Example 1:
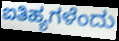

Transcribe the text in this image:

ಐತಿಹ್ಯಗಳೆಂದು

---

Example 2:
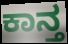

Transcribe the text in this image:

ಕಾನ್ತ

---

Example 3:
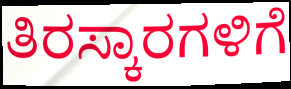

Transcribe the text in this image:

ತಿರಸ್ಕಾರಗಳಿಗೆ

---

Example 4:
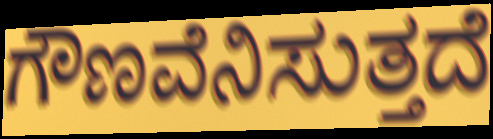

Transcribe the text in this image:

ಗೌಣವೆನಿಸುತ್ತದೆ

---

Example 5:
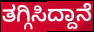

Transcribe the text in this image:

ತಗ್ಗಿಸಿದ್ದಾನೆ